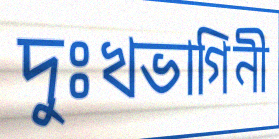
দুঃখভাগিনী